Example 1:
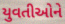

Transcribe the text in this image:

યુવતીઓને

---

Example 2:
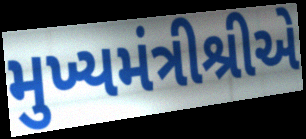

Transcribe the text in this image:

મુખ્યમંત્રીશ્રીએ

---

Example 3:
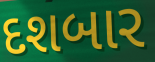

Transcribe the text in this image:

દશબાર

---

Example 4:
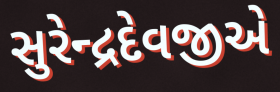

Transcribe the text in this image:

સુરેન્દ્રદેવજીએ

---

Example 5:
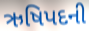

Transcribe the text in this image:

ઋષિપદની